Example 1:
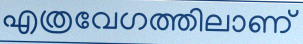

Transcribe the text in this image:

എത്രവേഗത്തിലാണ്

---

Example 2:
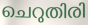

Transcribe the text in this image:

ചെറുതിരി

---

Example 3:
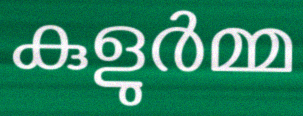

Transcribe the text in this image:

കുളുർമ്മ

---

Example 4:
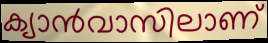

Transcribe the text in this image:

ക്യാൻവാസിലാണ്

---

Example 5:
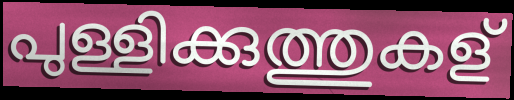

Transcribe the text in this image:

പുള്ളിക്കുത്തുകള്